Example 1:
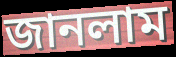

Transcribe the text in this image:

জানলাম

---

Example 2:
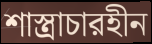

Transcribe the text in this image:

শাস্ত্রাচারহীন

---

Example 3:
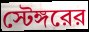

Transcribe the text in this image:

স্টেঙ্গরের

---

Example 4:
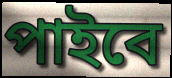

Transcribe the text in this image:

পাইবে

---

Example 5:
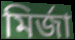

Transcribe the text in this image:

মির্জা